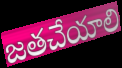
జతచేయాలి